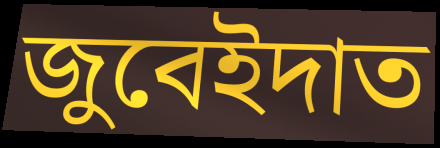
জুবেইদাত